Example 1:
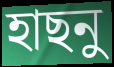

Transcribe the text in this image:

হাছনু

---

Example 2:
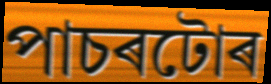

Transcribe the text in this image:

পাচৰটোৰ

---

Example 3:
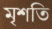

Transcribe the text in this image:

মৃশতি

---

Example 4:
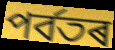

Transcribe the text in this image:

পৰ্বতৰ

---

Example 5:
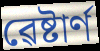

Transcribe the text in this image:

ৱেষ্টাৰ্ণ